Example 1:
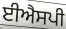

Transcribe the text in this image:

ਈਐਸਪੀ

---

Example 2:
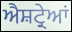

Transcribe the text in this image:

ਐਸ਼ਟ੍ਰੇਆਂ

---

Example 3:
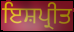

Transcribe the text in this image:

ਇਸ਼ਪ੍ਰੀਤ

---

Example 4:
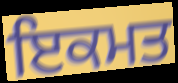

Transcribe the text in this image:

ਇਕਮਤ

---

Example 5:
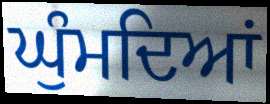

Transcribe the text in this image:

ਘੁੰਮਦਿਆਂ